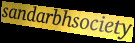
sandarbhsociety